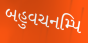
બહુવચનમ્પિ